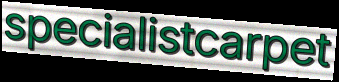
specialistcarpet